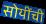
सोयींची